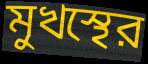
মুখস্থের